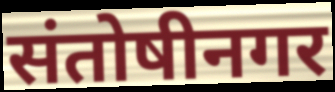
संतोषीनगर